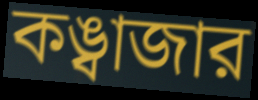
কঙ্বাজার